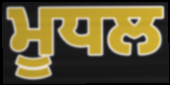
ਮੂਧਲ